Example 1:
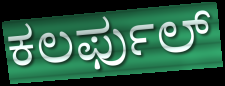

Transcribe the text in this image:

ಕಲರ್ಫುಲ್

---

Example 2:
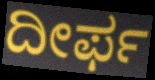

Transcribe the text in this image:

ದೀರ್ಫ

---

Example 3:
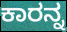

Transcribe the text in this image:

ಕಾರನ್ನ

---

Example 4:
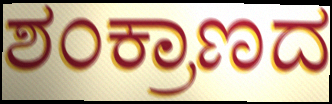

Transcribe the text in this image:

ಶಂಕ್ರಾಣದ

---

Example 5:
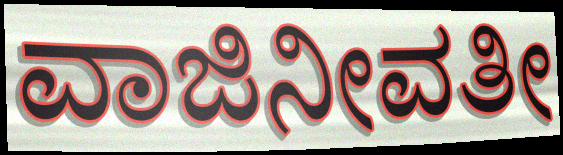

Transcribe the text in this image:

ವಾಜಿನೀವತೀ